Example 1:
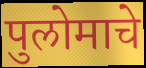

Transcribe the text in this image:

पुलोमाचे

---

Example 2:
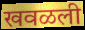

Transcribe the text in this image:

खवळली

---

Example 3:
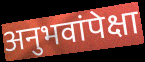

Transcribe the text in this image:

अनुभवांपेक्षा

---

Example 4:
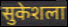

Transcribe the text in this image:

सुकेशला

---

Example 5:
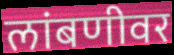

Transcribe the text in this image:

लांबणीवर